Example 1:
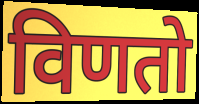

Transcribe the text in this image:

विणतो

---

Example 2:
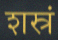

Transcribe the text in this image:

शस्रं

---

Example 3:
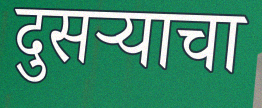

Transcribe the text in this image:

दुसऱ्याचा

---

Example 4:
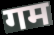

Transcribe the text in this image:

गम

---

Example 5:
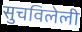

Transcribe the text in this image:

सुचविलेली